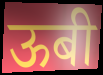
ऊबी